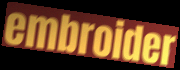
embroider